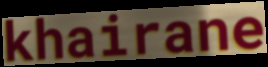
khairane